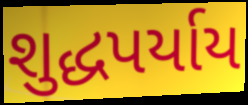
શુદ્ધપર્યાય